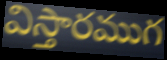
విస్తారముగ